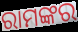
ରାମଙ୍କର